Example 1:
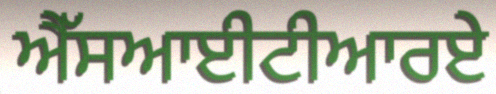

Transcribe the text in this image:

ਐੱਸਆਈਟੀਆਰਏ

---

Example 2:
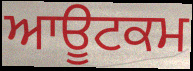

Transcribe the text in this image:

ਆਊਟਕਮ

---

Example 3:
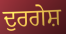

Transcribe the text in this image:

ਦੁਰਗੇਸ਼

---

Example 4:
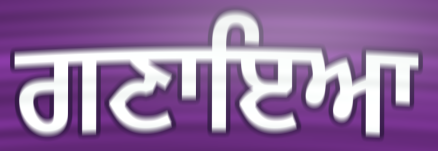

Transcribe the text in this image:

ਗਣਾਇਆ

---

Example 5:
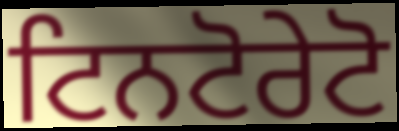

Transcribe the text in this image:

ਟਿਨਟੋਰੇਟੋ